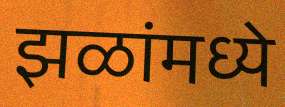
झळांमध्ये